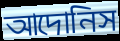
আদোনিস